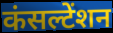
कंसल्टेंशन